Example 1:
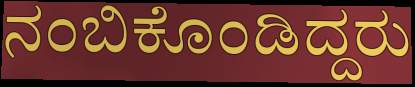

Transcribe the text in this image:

ನಂಬಿಕೊಂಡಿದ್ದರು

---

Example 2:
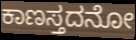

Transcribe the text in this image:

ಕಾಣಸ್ತದನೋ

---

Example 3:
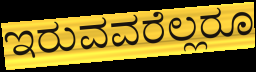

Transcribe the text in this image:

ಇರುವವರೆಲ್ಲರೂ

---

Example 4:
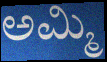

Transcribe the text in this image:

ಅಮ್ಮಿ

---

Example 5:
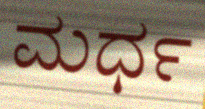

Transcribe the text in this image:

ಮರ್ಧ